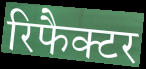
रिफैक्टर